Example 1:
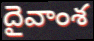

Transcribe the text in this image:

దైవాంశ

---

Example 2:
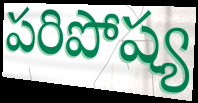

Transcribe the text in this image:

పరిపోష్య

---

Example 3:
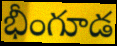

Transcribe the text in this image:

భీంగూడ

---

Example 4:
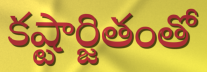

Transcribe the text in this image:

కష్టార్జితంతో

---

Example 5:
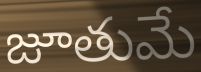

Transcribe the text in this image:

జూతుమే